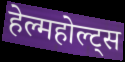
हेल्महोल्ट्स